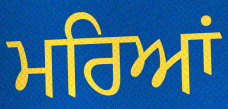
ਮਰਿਆਂ